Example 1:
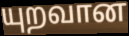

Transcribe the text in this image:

யுறவான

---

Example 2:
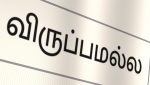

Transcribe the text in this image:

விருப்பமல்ல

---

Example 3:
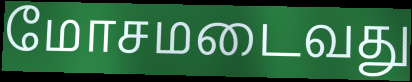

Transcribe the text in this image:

மோசமடைவது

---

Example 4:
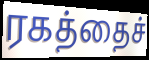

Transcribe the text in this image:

ரகத்தைச்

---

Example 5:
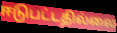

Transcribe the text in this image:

ஈடுபட்டதில்லை